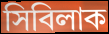
সিবিলাক